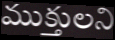
ముక్తులని